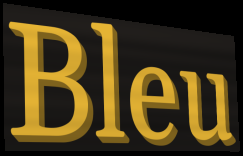
Bleu